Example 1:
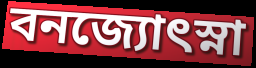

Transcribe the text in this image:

বনজ্যোৎস্না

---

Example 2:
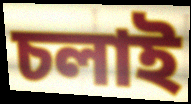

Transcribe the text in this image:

চলাই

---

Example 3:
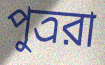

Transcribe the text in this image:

পুত্ররা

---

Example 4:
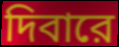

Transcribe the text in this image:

দিবারে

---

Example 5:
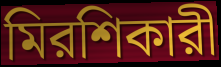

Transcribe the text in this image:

মিরশিকারী